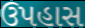
ઉપહાસ